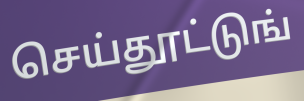
செய்தூட்டுங்